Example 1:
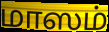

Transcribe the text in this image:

மாஸம்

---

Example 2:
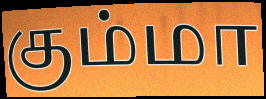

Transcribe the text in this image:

கும்மா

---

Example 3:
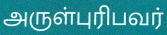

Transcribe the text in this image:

அருள்புரிபவர்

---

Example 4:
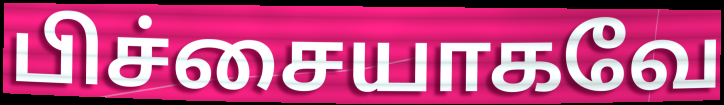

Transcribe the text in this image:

பிச்சையாகவே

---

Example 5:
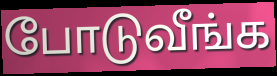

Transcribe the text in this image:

போடுவீங்க